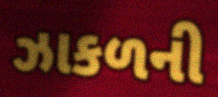
ઝાકળની